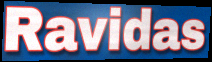
Ravidas